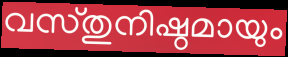
വസ്തുനിഷ്ഠമായും